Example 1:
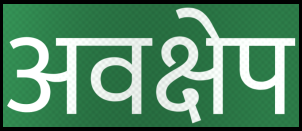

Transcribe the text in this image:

अवक्षेप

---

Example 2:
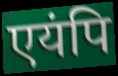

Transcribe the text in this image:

एयंपि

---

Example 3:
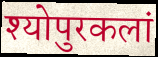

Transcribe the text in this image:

श्योपुरकलां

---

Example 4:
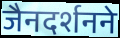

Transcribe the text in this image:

जैनदर्शनने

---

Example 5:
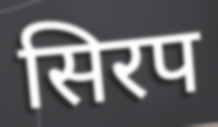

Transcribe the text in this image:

सिरप